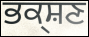
ਭਕ੍ਸ਼ਣ